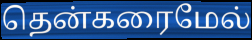
தென்கரைமேல்